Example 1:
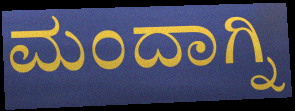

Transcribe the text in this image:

ಮಂದಾಗ್ನಿ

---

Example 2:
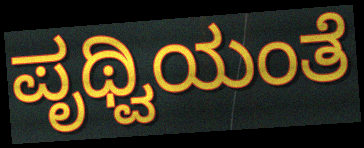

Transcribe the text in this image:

ಪೃಥ್ವಿಯಂತೆ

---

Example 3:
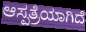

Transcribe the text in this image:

ಆಸ್ಪತ್ರೆಯಾಗಿದೆ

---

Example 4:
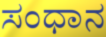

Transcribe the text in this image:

ಸಂಧಾನ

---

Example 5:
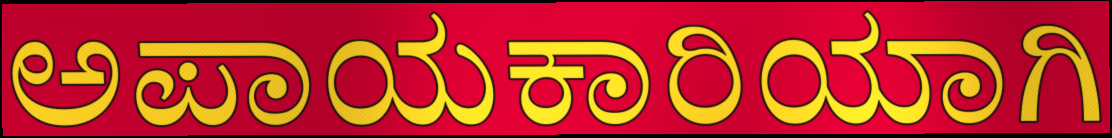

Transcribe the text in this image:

ಅಪಾಯಕಾರಿಯಾಗಿ